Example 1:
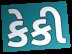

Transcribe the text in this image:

કેકી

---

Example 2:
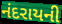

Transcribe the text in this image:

નંદરાયની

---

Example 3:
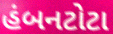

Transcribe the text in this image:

હંબનટોટા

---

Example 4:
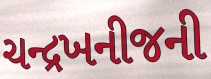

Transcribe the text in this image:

ચન્દ્રખનીજની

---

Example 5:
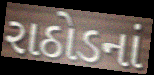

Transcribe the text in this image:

રાઠોડનાં